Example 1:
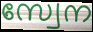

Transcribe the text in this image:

സ്വേന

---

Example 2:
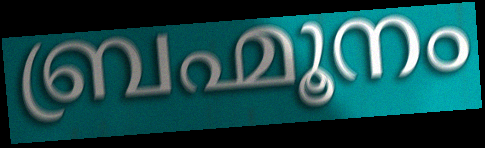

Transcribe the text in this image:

ബ്രഹ്മൂനം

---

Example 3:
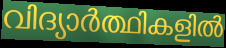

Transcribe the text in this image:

വിദ്യാർത്ഥികളിൽ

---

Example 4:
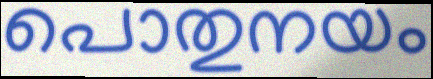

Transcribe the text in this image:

പൊതുനയം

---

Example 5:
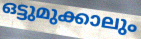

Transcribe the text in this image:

ഒട്ടുമുക്കാലും